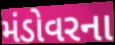
મંડોવરના